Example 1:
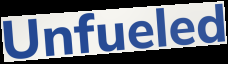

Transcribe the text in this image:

Unfueled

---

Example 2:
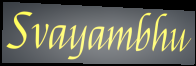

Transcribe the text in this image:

Svayambhu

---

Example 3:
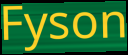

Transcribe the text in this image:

Fyson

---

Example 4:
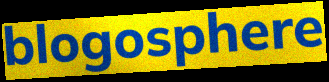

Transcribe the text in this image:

blogosphere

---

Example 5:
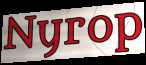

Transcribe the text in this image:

Nyrop